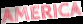
AMERICA